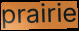
prairie